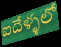
ఐదేళ్ళలో